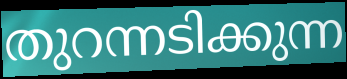
തുറന്നടിക്കുന്ന